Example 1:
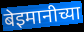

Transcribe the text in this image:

बेइमानीच्या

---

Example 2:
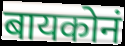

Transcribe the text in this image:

बायकोनं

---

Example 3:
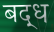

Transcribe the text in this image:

बद्ध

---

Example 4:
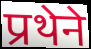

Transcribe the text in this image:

प्रथेने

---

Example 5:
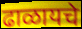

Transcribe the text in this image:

ढाळायचे